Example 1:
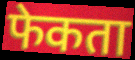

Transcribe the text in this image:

फेकता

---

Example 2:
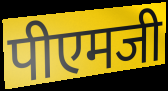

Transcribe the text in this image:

पीएमजी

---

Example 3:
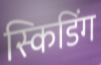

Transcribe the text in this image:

स्किडिंग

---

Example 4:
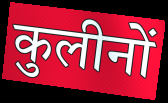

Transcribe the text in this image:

कुलीनों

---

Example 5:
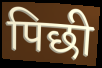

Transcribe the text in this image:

पिछी